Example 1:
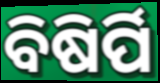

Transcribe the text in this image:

ବିଷିର୍ପି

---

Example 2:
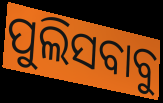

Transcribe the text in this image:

ପୁଲିସବାବୁ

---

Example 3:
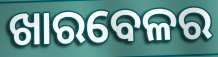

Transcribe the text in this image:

ଖାରବେଳର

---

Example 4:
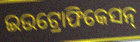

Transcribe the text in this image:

ଇଉଟ୍ରୋଫିକେସନ୍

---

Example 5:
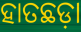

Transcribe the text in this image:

ହାତଛଡ଼ା